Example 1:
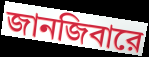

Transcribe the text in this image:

জানজিবারে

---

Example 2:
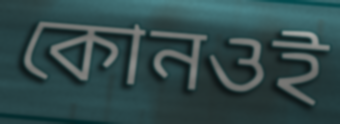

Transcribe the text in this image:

কোনওই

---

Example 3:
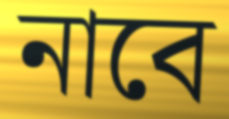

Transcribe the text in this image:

নাবে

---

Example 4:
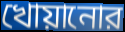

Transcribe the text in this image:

খোয়ানোর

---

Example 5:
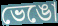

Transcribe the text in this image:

ভেঙো